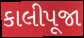
કાલીપૂજા